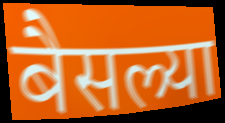
बैसल्या